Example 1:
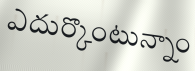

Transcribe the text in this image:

ఎదుర్కొంటున్నాం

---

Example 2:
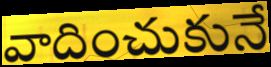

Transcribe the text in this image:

వాదించుకునే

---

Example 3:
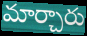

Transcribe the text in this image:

మార్చారు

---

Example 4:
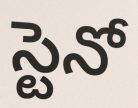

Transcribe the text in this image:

స్టెనో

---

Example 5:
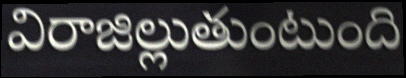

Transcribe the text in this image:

విరాజిల్లుతుంటుంది